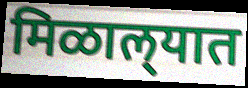
मिळाल्यात